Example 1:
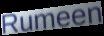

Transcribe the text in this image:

Rumeen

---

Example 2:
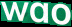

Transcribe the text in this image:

wao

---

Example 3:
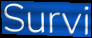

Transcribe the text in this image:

Survi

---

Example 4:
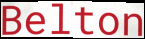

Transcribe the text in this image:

Belton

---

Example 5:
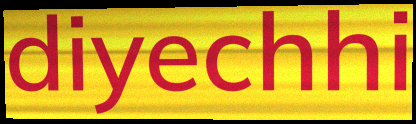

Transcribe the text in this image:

diyechhi